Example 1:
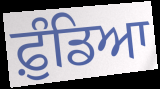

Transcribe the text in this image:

ਫ਼ੁੰਡਿਆ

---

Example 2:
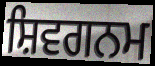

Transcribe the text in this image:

ਸ਼ਿਵਗਨਮ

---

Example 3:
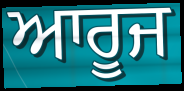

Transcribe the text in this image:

ਆਰੂਜ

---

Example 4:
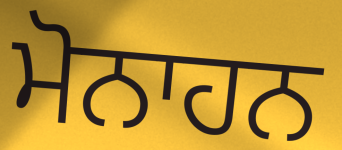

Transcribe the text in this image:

ਮੋਨਾਹਨ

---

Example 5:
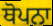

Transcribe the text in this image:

ਥੋਪਨਾ